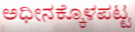
ಅಧೀನಕ್ಕೊಳಪಟ್ಟ